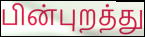
பின்புறத்து